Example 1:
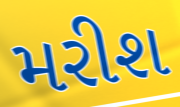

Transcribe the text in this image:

મરીશ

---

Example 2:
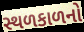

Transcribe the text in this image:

સ્થળકાળનો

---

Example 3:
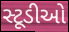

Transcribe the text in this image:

સ્ટૂડીઓ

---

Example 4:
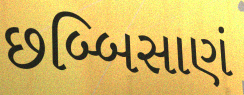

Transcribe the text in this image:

છબ્બિસાણં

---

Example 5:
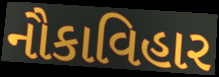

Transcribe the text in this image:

નૌકાવિહાર